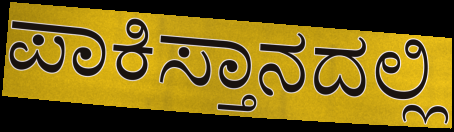
ಪಾಕಿಸ್ತಾನದಲ್ಲಿ